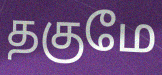
தகுமே